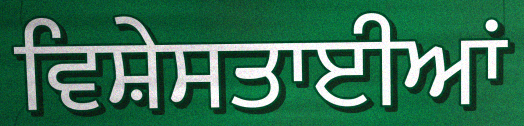
ਵਿਸ਼ੇਸਤਾਈਆਂ